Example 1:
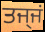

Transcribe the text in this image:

ਤਜ੍ਜਂ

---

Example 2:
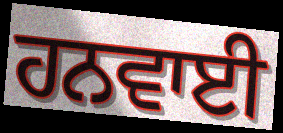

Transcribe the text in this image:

ਹਨਵਾਈ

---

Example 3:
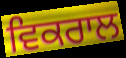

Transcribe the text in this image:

ਵਿਕਰਾਲ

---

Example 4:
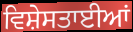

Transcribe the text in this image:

ਵਿਸ਼ੇਸਤਾਈਆਂ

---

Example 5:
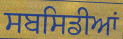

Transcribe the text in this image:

ਸਬਸਿਡੀਆਂ